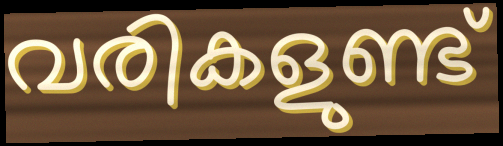
വരികളുണ്ട്